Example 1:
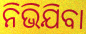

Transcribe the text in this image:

ନିଭିଯିବା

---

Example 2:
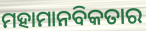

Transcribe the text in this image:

ମହାମାନବିକତାର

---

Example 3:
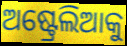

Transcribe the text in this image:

ଅଷ୍ଟ୍ରେଲିଆକୁ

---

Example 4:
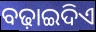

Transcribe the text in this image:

ବଢ଼ାଇଦିଏ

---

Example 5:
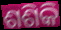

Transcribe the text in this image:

ଶଶିକି